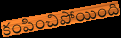
కంపించిపోయింది